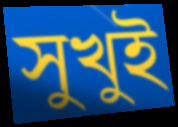
সুখুই